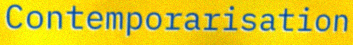
Contemporarisation